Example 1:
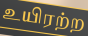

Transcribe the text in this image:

உயிரற்ற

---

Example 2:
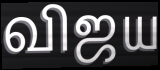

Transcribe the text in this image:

விஜய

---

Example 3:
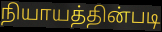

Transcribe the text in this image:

நியாயத்தின்படி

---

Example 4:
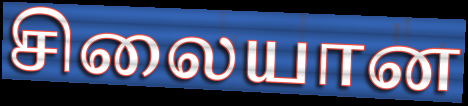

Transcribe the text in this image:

சிலையான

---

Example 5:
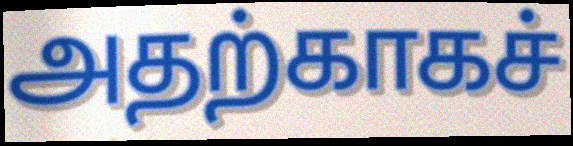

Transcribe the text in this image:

அதற்காகச்